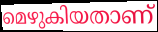
മെഴുകിയതാണ്